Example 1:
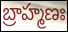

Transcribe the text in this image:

బ్రాహ్మణః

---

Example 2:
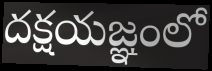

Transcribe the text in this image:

దక్షయజ్ఞంలో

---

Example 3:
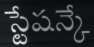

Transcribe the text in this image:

స్టేషన్కే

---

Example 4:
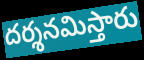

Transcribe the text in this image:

దర్శనమిస్తారు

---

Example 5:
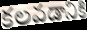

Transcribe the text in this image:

కలవడానికి